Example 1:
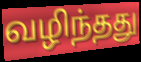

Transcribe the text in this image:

வழிந்தது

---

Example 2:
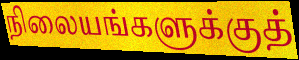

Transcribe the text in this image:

நிலையங்களுக்குத்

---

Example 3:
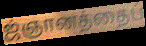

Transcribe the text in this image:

ஜ்ஞானத்தைப்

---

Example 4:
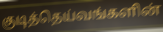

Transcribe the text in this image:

குடித்தெய்வங்களின்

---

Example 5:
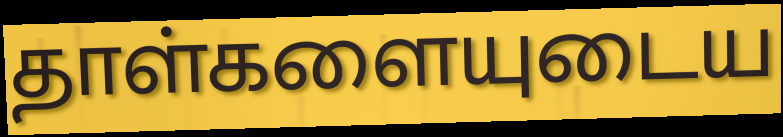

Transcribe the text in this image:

தாள்களையுடைய